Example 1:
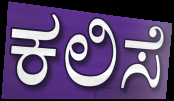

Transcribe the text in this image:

ಕಲಿಸೆ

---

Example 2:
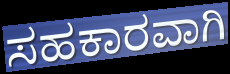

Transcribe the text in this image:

ಸಹಕಾರವಾಗಿ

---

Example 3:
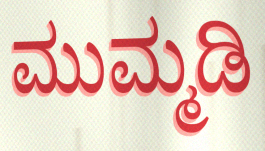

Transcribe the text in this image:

ಮುಮ್ಮಡಿ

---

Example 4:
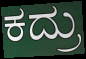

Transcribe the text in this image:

ಕದ್ರು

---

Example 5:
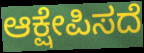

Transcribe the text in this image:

ಆಕ್ಷೇಪಿಸದೆ